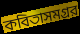
কবিতাসমগ্রর